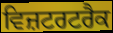
ਵਿਜ਼ਟਰਟਰੈਕ